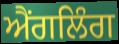
ਐਂਗਲਿੰਗ